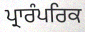
ਪ੍ਰਾਰੰਪਰਿਕ